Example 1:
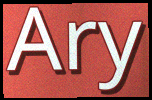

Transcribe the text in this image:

Ary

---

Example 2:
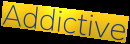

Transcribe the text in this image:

Addictive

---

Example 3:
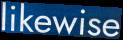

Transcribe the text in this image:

likewise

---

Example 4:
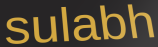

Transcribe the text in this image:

sulabh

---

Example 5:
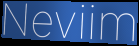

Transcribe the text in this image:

Neviim